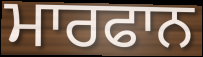
ਮਾਰਫਾਨ